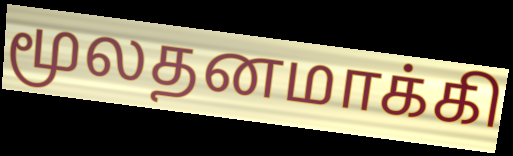
மூலதனமாக்கி